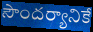
సౌందర్యానికే